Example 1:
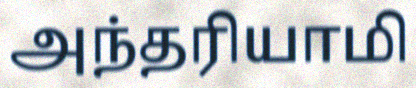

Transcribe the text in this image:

அந்தரியாமி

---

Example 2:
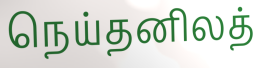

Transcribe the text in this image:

நெய்தனிலத்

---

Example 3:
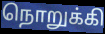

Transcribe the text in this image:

நொறுக்கி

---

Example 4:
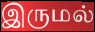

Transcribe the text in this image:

இருமல்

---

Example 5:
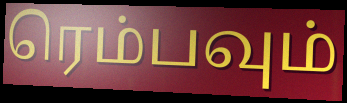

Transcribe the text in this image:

ரெம்பவும்